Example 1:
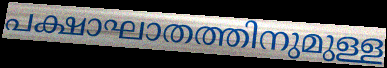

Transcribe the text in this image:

പക്ഷാഘാതത്തിനുമുള്ള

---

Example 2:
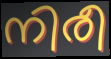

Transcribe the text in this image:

നിരീ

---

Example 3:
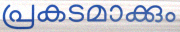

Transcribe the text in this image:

പ്രകടമാക്കും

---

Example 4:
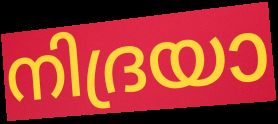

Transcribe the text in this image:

നിദ്രയാ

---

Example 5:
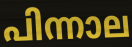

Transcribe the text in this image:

പിന്നാല